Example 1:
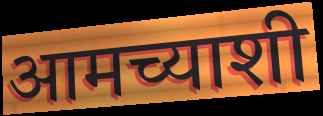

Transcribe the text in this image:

आमच्याशी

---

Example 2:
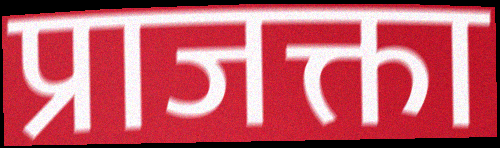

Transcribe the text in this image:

प्राजक्ता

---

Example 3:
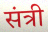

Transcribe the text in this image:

संत्री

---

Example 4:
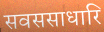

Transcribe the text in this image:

सवससाधारि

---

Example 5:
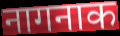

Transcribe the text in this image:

नागनाक